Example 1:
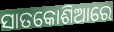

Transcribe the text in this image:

ସାତକୋଶିଆରେ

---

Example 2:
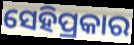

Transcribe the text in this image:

ସେହିପ୍ରକାର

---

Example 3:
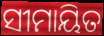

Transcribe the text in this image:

ସୀମାୟିତ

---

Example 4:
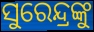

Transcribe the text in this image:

ସୁରେନ୍ଦ୍ରଙ୍କୁ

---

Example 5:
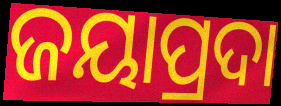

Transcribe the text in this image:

ଜୟାପ୍ରଦା